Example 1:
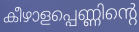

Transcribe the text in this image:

കീഴാളപ്പെണ്ണിന്റെ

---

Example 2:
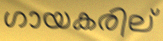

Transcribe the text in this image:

ഗായകരില്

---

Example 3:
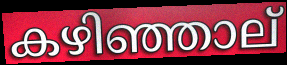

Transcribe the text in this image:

കഴിഞ്ഞാല്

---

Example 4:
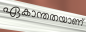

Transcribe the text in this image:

ഏകാന്തതയാണ്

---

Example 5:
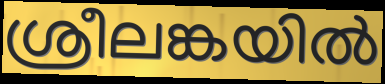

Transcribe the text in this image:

ശ്രീലങ്കയിൽ